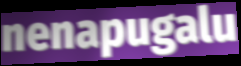
nenapugalu